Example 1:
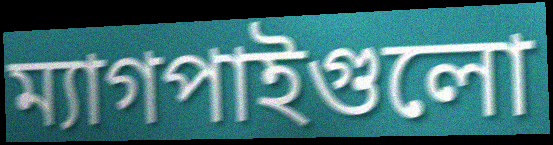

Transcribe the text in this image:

ম্যাগপাইগুলো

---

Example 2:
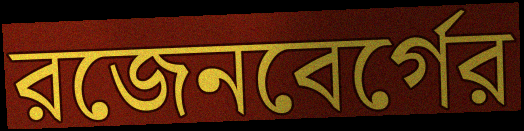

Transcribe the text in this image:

রজেনবের্গের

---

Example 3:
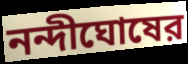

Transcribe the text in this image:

নন্দীঘোষের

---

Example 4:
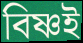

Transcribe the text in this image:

বিষ্ণই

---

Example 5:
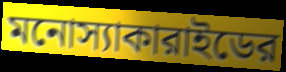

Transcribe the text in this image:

মনোস্যাকারাইডের